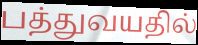
பத்துவயதில்